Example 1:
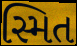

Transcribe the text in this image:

સ્મિત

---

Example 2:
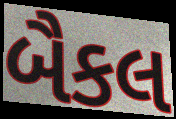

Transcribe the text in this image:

બૈકલ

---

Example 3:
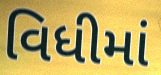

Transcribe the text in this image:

વિધીમાં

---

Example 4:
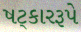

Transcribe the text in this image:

ષટ્કારરૂપે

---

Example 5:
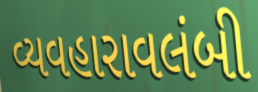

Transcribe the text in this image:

વ્યવહારાવલંબી